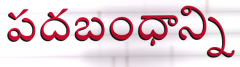
పదబంధాన్ని